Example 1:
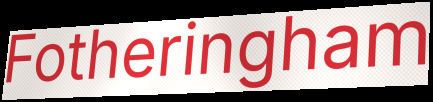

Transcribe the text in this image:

Fotheringham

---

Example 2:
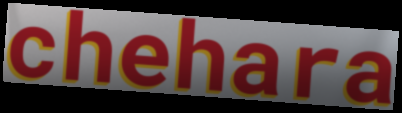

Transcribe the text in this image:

chehara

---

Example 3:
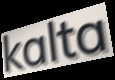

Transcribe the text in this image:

kalta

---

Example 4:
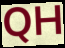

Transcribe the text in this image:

QH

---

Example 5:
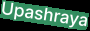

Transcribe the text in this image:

Upashraya